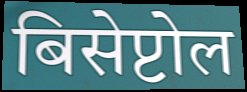
बिसेप्टोल